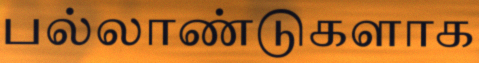
பல்லாண்டுகளாக